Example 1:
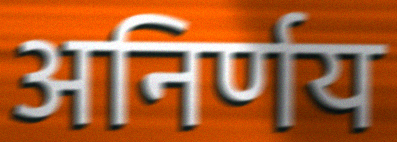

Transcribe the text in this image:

अनिर्णय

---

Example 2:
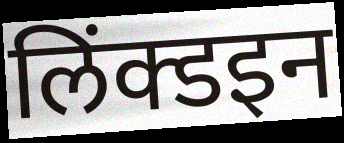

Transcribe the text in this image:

लिंक्डइन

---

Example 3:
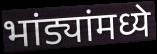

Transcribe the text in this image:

भांड्यांमध्ये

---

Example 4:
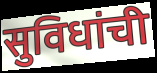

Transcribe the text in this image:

सुविधांची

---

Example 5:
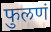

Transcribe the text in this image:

फुलणं